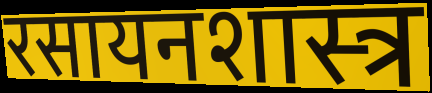
रसायनशास्त्र